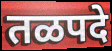
तळपदे